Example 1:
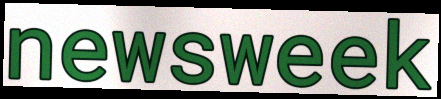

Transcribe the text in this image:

newsweek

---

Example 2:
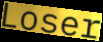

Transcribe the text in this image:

Loser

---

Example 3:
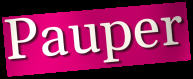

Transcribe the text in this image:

Pauper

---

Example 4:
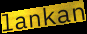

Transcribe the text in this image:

lankan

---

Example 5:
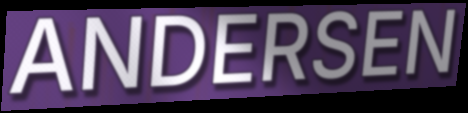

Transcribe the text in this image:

ANDERSEN